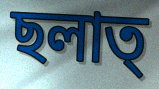
ছলাত্